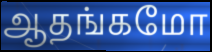
ஆதங்கமோ